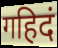
गहिदं